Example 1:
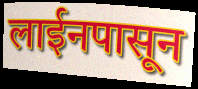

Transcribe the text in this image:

लाईनपासून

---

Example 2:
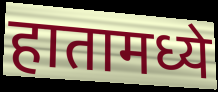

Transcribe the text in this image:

हातामध्ये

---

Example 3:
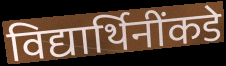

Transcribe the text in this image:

विद्यार्थिनींकडे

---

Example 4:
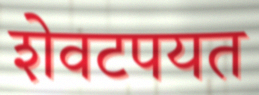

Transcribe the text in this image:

शेवटपयत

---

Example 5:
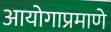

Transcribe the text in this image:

आयोगाप्रमाणे